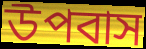
উপবাস